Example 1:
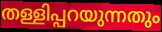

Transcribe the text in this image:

തള്ളിപ്പറയുന്നതും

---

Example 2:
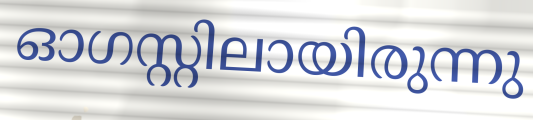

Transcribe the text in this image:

ഓഗസ്റ്റിലായിരുന്നു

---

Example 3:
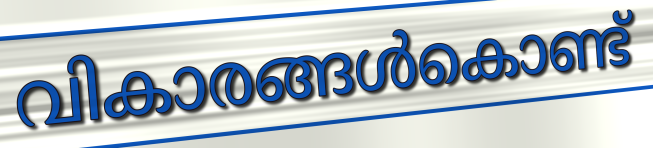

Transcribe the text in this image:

വികാരങ്ങൾകൊണ്ട്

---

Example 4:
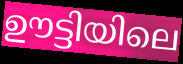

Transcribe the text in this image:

ഊട്ടിയിലെ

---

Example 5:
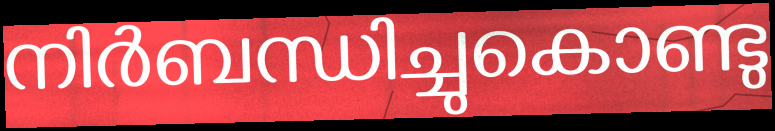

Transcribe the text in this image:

നിർബന്ധിച്ചുകൊണ്ടു